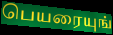
பெயரையுங்